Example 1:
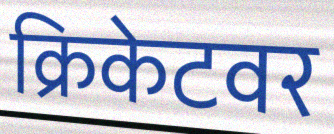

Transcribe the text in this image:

क्रिकेटवर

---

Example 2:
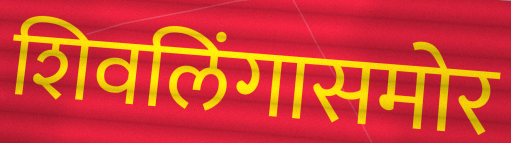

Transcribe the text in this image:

शिवलिंगासमोर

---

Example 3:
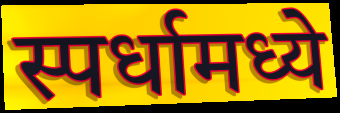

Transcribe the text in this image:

स्पर्धामध्ये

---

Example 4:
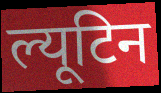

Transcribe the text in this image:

ल्यूटिन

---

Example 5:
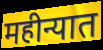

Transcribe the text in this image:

महीन्यात